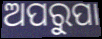
ଅପରୁପା